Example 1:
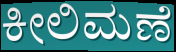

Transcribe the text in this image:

ಕೀಲಿಮಣೆ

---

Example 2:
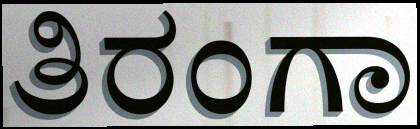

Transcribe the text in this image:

ತಿರಂಗಾ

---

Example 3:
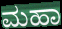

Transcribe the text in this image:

ಮಹಾ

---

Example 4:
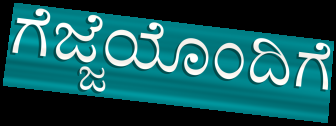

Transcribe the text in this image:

ಗೆಜ್ಜೆಯೊಂದಿಗೆ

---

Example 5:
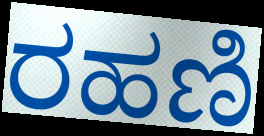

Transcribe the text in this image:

ರಹಣಿ